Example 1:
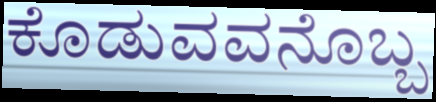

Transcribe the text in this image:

ಕೊಡುವವನೊಬ್ಬ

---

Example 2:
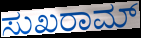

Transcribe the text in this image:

ಸುಖರಾಮ್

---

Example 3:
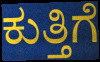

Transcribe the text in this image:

ಕುತ್ತಿಗೆ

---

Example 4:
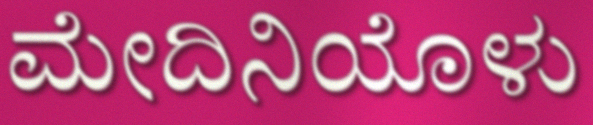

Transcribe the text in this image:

ಮೇದಿನಿಯೊಳು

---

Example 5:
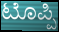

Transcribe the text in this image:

ಟೊಪ್ಪಿ